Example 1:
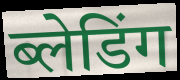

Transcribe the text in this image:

ब्लेडिंग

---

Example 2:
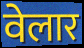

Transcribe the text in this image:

वेलार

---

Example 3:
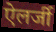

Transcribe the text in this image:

ऐलर्जी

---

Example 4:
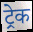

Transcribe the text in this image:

ट्रेक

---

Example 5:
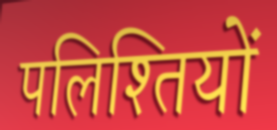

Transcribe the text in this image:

पलिश्तियों